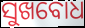
ସୁଖବୋଧ